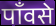
पाँवसे